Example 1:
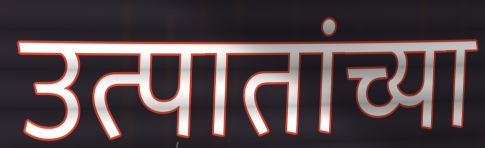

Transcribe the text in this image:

उत्पातांच्या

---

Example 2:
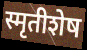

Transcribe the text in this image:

स्मृतीशेष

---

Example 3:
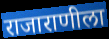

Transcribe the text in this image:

राजाराणीला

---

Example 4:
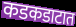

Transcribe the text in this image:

कडकडाटात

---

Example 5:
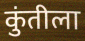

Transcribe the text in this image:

कुंतीला